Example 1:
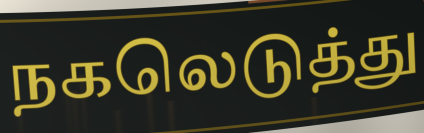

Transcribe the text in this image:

நகலெடுத்து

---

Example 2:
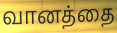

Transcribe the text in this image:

வானத்தை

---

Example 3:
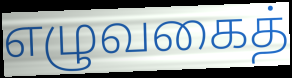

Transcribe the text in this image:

எழுவகைத்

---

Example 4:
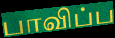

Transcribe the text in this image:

பாவிப்ப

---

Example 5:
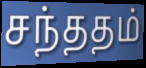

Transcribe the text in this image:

சந்ததம்